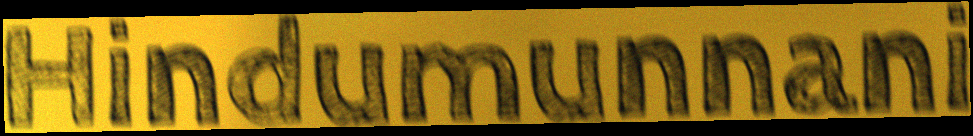
Hindumunnani